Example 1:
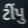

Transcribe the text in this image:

ટીંપુ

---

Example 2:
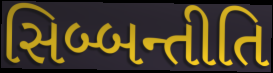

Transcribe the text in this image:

સિબ્બન્તીતિ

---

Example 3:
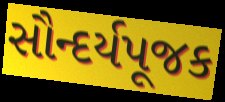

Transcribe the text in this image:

સૌન્દર્યપૂજક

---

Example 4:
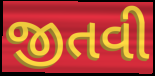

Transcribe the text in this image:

જીતવી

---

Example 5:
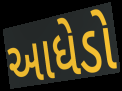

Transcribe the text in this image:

આધેડો